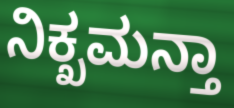
ನಿಕ್ಖಮನ್ತಾ